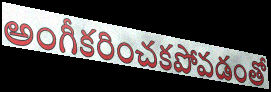
అంగీకరించకపోవడంతో